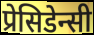
प्रेसिडेन्सी